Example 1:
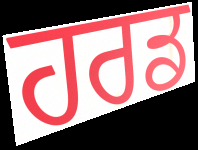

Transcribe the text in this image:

ਹਰਡ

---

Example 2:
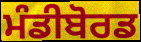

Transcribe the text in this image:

ਮੰਡੀਬੋਰਡ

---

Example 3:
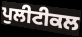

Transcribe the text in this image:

ਪੁਲੀਟੀਕਲ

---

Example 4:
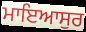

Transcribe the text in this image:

ਮਾਇਆਸੁਰ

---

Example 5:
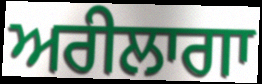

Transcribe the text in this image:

ਅਰੀਲਾਗਾ